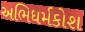
અભિધર્મકોશ